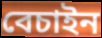
বেচাইন